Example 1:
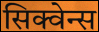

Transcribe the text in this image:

सिक्वेन्स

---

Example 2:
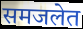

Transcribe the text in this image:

समजलेत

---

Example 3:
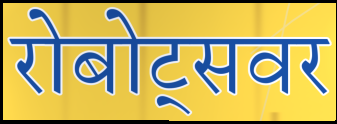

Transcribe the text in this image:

रोबोट्सवर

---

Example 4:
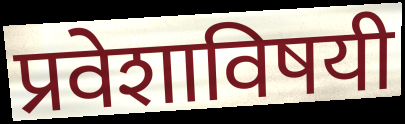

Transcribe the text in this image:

प्रवेशाविषयी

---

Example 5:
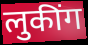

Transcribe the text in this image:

लुकींग